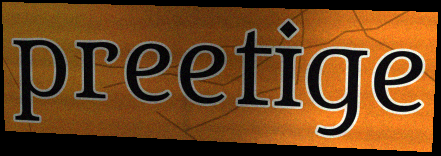
preetige